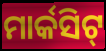
ମାର୍କସିଟ୍